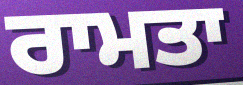
ਰਾਮਤਾ